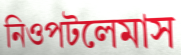
নিওপটলেমাস